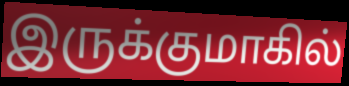
இருக்குமாகில்